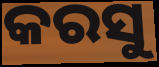
କରସୁ